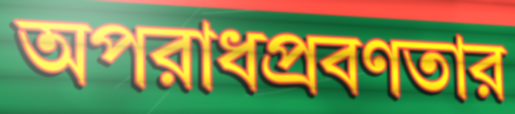
অপরাধপ্রবণতার